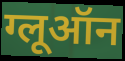
ग्लूऑन